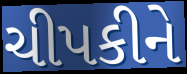
ચીપકીને